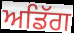
ਅਡਿੱਗ